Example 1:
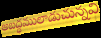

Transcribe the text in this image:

అబద్ధములాడుచున్నవి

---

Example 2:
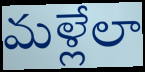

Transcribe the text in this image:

మళ్లేలా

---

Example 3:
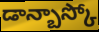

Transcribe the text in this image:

డాన్బాస్కో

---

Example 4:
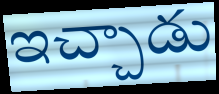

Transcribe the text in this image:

ఇచ్చాడు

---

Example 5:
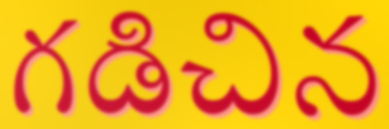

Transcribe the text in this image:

గడిచిన